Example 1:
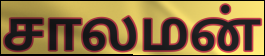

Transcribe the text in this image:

சாலமன்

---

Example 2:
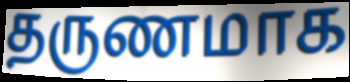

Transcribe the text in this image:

தருணமாக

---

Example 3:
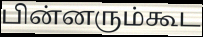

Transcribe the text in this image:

பின்னரும்கூட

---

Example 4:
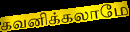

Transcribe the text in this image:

கவனிக்கலாமே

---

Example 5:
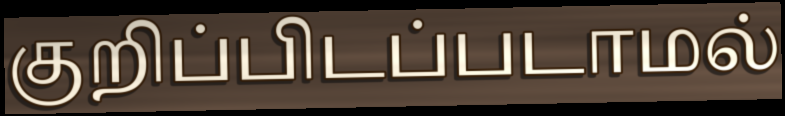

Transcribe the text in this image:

குறிப்பிடப்படாமல்